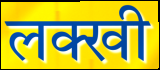
लक्खी